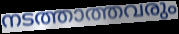
നടത്താത്തവരും